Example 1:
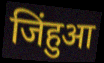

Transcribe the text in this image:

जिंहुआ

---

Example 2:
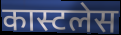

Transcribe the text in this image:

कास्टलेस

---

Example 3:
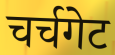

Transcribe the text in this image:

चर्चगेट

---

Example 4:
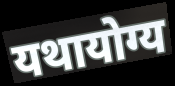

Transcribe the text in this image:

यथायोग्य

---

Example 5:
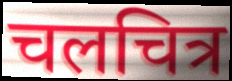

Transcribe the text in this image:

चलचित्र